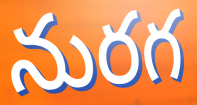
నురగ